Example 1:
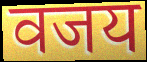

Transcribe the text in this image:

वजय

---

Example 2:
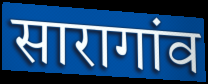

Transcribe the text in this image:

सारागांव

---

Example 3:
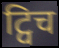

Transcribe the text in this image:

ट्विच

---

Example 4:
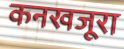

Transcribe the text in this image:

कनखजूरा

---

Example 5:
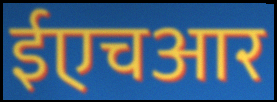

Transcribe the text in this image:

ईएचआर